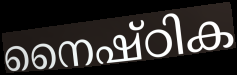
നൈഷ്ഠിക